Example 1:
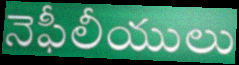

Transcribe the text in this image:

నెఫీలీయులు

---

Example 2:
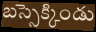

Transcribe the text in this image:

బస్సెక్కిండు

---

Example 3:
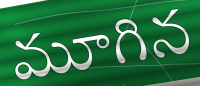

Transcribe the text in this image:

మూగిన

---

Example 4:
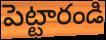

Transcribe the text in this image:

పెట్టారండి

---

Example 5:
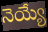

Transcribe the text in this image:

నెయ్యే